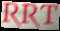
RRT